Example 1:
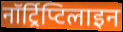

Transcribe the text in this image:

नॉर्ट्रिप्टिलाइन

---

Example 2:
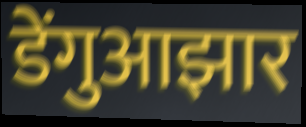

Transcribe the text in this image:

डेंगुआझार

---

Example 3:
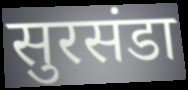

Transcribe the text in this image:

सुरसंडा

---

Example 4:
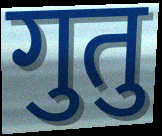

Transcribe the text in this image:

गुतु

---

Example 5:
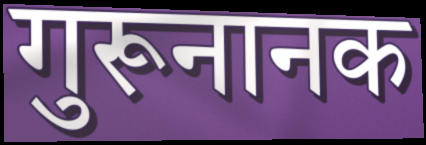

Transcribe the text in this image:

गुरूनानक